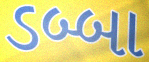
ડબ્બા